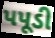
પપૂડી